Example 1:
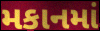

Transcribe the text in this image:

મકાનમાં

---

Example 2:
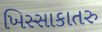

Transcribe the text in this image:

ખિસ્સાકાતરુ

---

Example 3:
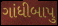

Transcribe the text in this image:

ગાંધીબાપુ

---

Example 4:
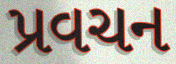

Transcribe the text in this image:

પ્રવચન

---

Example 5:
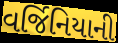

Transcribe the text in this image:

વર્જિનિયાની